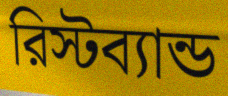
রিস্টব্যান্ড